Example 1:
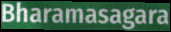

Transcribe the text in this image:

Bharamasagara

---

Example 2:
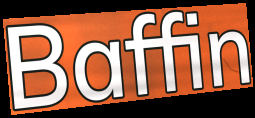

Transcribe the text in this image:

Baffin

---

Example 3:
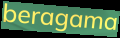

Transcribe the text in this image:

beragama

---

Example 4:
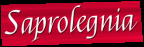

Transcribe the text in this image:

Saprolegnia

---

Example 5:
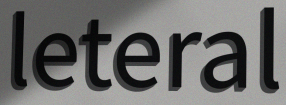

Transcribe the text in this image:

leteral